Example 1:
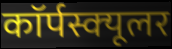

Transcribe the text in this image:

कॉर्पस्क्यूलर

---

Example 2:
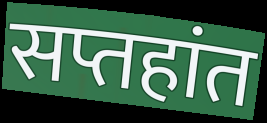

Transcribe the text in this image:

सप्तहांत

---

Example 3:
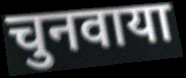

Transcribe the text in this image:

चुनवाया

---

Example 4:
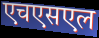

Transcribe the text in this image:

एचएसएल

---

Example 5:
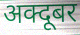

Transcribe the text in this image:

अक्दूबर